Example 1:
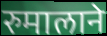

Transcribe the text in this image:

रुमालाने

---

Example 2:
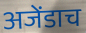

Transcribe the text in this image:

अजेंडाच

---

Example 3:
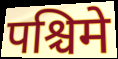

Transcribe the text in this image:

पश्चिमे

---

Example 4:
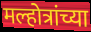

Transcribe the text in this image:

मल्होत्रांच्या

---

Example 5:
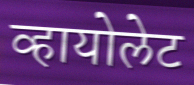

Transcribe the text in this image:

व्हायोलेट